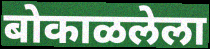
बोकाळलेला